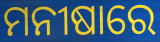
ମନୀଷାରେ